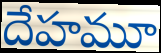
దేహమూ